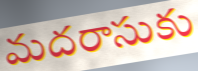
మదరాసుకు